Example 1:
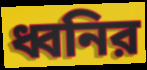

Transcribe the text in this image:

ধ্বনির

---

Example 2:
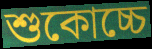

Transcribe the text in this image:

শুকোচ্চে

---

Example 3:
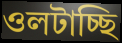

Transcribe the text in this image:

ওলটাচ্ছি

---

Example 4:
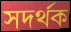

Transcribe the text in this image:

সদর্থক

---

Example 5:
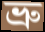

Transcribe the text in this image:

ভ্রু